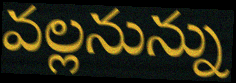
వల్లనున్ను